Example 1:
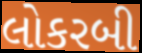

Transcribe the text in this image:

લોકરબી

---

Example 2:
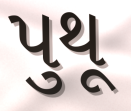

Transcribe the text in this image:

પુથૂ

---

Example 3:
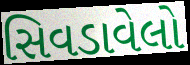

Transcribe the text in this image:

સિવડાવેલો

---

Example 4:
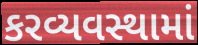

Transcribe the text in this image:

કરવ્યવસ્થામાં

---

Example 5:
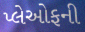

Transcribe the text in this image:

પ્લેઓફની